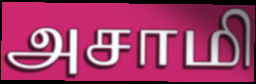
அசாமி